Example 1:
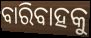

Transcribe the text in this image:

ବାରିବାହକୁ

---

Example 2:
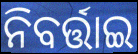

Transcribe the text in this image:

ନିବର୍ତ୍ତାଇ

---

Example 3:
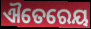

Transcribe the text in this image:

ଐତେରେୟ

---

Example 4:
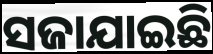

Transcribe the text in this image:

ସଜାଯାଇଛି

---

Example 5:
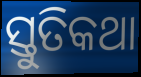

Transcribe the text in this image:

ସ୍ତୁତିକଥା